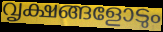
വൃക്ഷങ്ങളോടും